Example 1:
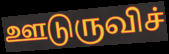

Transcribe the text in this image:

ஊடுருவிச்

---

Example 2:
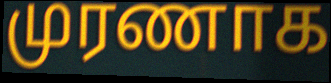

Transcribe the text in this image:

முரணாக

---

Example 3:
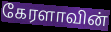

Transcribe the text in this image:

கேரளாவின்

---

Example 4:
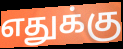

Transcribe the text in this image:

எதுக்கு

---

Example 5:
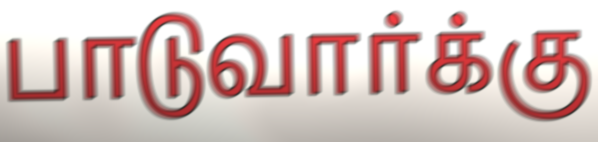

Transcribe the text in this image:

பாடுவார்க்கு